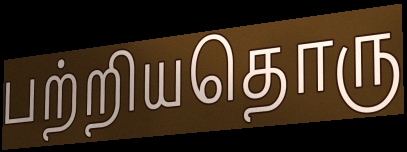
பற்றியதொரு